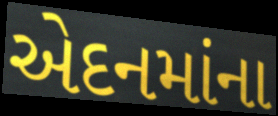
એદનમાંના